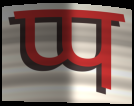
प्प